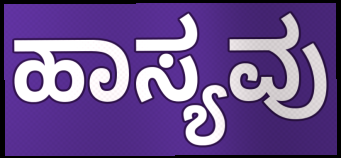
ಹಾಸ್ಯವು